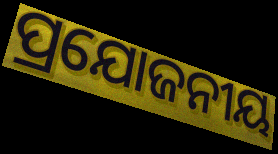
ପ୍ରଯୋଜନୀୟ